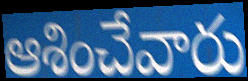
ఆశించేవారు